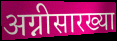
अग्नीसारख्या